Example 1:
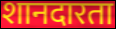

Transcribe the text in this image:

शानदारता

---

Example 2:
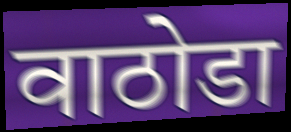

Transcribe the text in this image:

वाठोडा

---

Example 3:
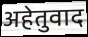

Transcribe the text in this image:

अहेतुवाद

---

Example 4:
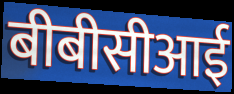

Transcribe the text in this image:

बीबीसीआई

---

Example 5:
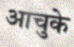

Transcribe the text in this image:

आचुके